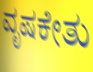
ವೃಷಕೇತು